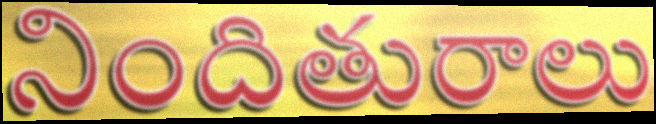
నిందితురాలు